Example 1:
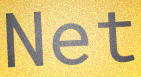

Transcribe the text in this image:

Net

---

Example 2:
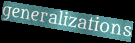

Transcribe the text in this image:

generalizations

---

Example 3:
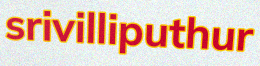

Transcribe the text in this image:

srivilliputhur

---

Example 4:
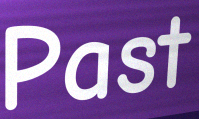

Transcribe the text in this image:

Past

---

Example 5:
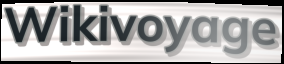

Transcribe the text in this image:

Wikivoyage